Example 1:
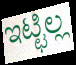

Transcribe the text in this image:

ಇಟ್ಟಿಲ್ಲ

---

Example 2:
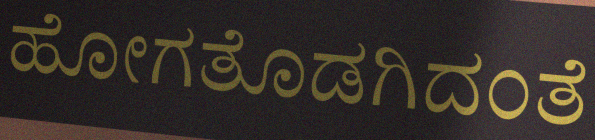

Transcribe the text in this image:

ಹೋಗತೊಡಗಿದಂತೆ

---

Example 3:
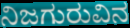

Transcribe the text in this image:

ನಿಜಗುರುವಿನ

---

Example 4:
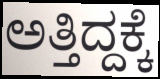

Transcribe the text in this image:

ಅತ್ತಿದ್ದಕ್ಕೆ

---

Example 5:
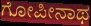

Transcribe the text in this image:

ಗೋಪೀನಾಥ